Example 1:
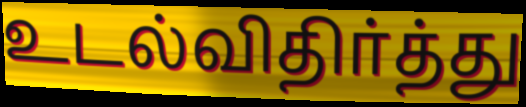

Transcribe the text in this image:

உடல்விதிர்த்து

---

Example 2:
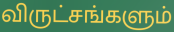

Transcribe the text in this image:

விருட்சங்களும்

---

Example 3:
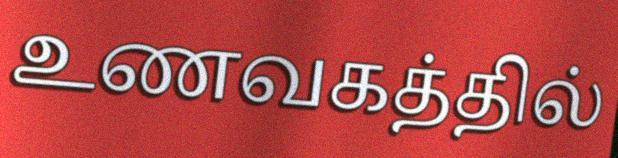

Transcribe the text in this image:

உணவகத்தில்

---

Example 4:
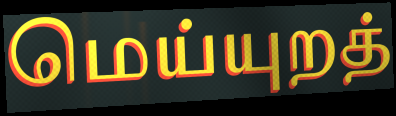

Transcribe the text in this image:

மெய்யுறத்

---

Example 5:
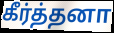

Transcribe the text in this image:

கீர்த்தனா